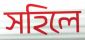
সহিলে